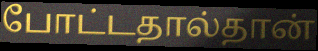
போட்டதால்தான்